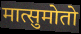
मात्सुमोतो